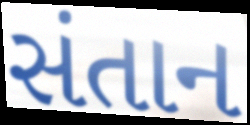
સંતાન